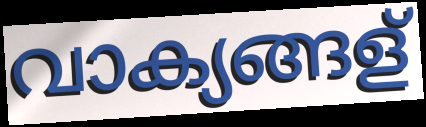
വാക്യങ്ങള്